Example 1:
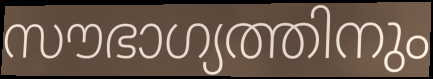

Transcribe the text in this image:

സൗഭാഗ്യത്തിനും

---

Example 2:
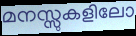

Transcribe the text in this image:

മനസ്സുകളിലോ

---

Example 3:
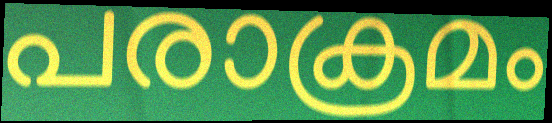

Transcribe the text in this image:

പരാക്രമം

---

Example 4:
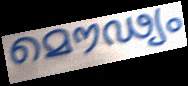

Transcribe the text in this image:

മൌഢ്യം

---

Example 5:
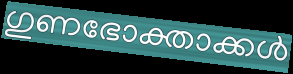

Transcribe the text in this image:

ഗുണഭോക്താക്കൾ